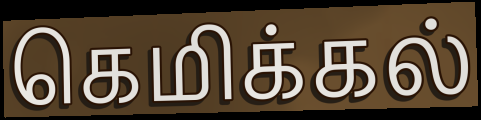
கெமிக்கல்